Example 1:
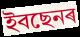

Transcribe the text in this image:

ইবছেনৰ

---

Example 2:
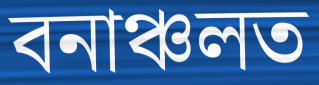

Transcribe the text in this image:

বনাঞ্চলত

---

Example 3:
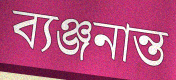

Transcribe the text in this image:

ব্যঞ্জনান্ত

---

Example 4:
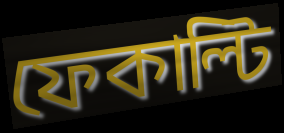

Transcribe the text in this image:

ফেকাল্টি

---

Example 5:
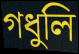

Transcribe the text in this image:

গধুলি